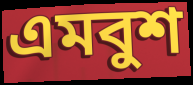
এমবুশ